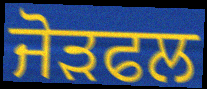
ਜੋੜਫਲ